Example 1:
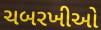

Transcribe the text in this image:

ચબરખીઓ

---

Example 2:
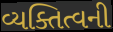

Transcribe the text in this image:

વ્યક્તિત્વની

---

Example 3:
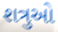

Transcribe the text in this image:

શત્રુઓ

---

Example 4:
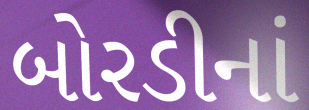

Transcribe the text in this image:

બોરડીનાં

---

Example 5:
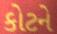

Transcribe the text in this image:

કોટને